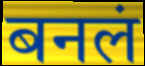
बनलं